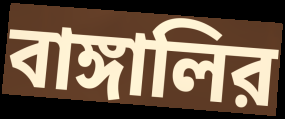
বাঙ্গালির